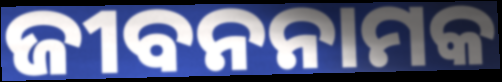
ଜୀବନନାମକ